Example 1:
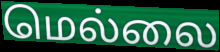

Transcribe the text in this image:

மெல்லை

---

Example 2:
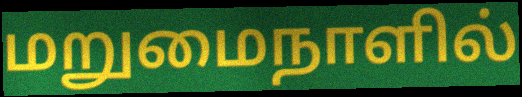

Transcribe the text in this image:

மறுமைநாளில்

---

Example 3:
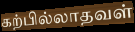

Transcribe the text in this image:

கற்பில்லாதவள்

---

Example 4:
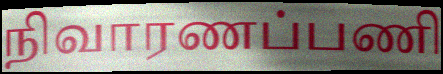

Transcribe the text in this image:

நிவாரணப்பணி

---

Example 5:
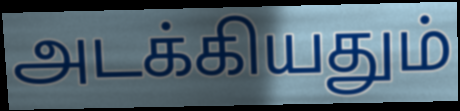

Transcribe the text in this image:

அடக்கியதும்